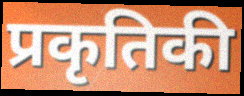
प्रकृतिकी